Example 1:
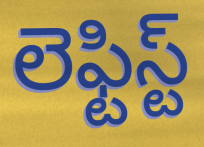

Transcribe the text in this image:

లెఫ్టిస్ట్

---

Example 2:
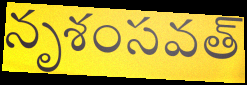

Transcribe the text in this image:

నృశంసవత్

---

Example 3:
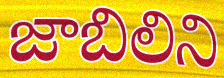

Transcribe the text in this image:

జాబిలిని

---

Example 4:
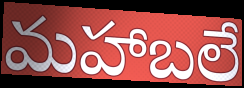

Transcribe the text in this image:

మహాబలే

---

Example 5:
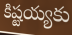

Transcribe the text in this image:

కిష్టయ్యకు